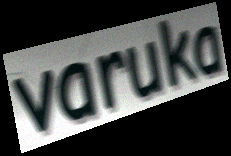
varuka